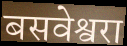
बसवेश्वरा